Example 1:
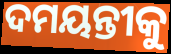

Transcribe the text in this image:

ଦମୟନ୍ତୀକୁ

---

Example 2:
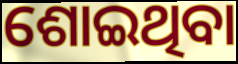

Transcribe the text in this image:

ଶୋଇଥିବା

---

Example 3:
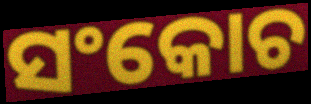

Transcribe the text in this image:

ସଂକୋଚ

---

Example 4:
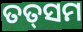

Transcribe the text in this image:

ତତ୍‌ସମ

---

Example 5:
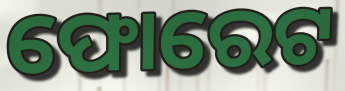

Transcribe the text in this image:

ଫୋରେଟ